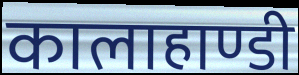
कालाहाण्डी